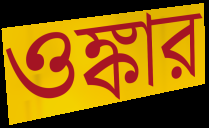
ওঙ্কার